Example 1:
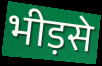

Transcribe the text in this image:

भीड़से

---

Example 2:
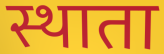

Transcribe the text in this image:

स्थाता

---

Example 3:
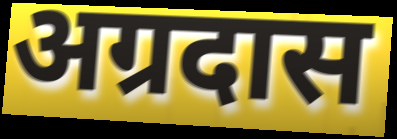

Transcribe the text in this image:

अग्रदास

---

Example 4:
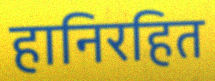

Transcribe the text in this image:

हानिरहित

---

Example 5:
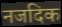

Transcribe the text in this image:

नजदिक